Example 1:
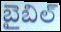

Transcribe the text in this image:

బైబిల్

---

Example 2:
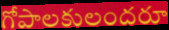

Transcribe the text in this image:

గోపాలకులందరూ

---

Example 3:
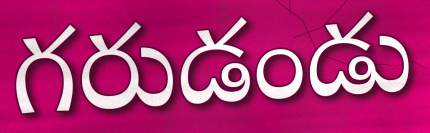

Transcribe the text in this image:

గరుడండు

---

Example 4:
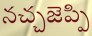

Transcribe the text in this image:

నచ్చజెప్పి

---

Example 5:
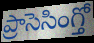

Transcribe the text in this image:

ప్రాసెసింగ్తో